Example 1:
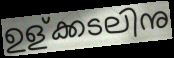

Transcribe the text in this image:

ഉള്ക്കടലിനു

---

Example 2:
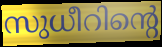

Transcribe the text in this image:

സുധീറിന്റെ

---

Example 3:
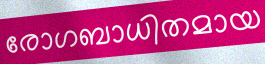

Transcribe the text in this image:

രോഗബാധിതമായ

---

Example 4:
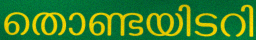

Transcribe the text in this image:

തൊണ്ടയിടറി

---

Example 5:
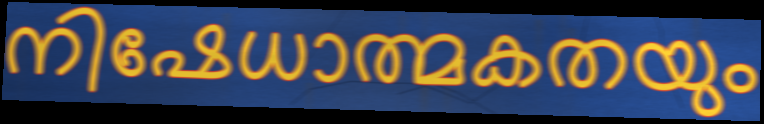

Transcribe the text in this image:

നിഷേധാത്മകതയും